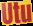
Utu